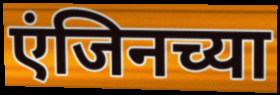
एंजिनच्या